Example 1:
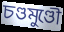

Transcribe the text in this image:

চণ্ডমুণ্ডৌ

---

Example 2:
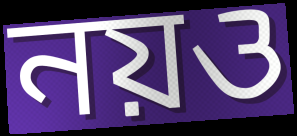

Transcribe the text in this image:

নয়ও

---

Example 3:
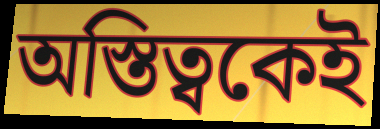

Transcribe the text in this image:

অস্তিত্বকেই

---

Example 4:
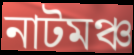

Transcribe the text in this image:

নাটমঞ্চ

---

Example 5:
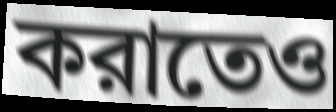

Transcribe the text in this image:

করাতেও